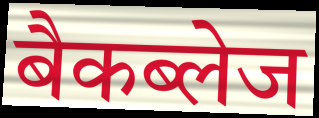
बैकब्लेज